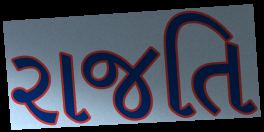
રાજતિ